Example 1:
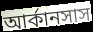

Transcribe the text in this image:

আর্কানসাস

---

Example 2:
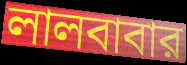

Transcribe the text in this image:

লালবাবার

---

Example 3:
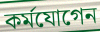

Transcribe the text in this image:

কর্মযোগেন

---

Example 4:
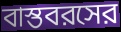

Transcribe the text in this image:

বাস্তবরসের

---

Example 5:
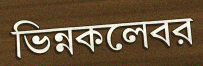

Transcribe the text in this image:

ভিন্নকলেবর